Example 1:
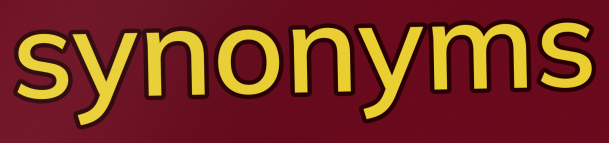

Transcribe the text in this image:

synonyms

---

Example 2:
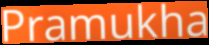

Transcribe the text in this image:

Pramukha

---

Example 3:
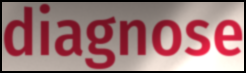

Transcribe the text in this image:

diagnose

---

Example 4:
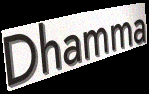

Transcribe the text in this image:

Dhamma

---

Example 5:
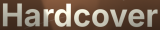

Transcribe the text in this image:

Hardcover